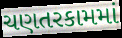
ચણતરકામમાં